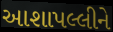
આશાપલ્લીને